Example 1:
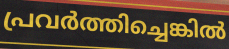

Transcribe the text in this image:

പ്രവർത്തിച്ചെങ്കിൽ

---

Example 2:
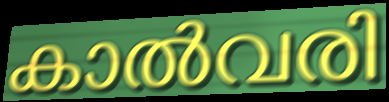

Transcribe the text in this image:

കാൽവരി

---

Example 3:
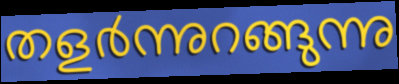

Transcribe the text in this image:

തളർന്നുറങ്ങുന്നു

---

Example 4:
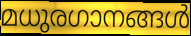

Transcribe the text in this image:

മധുരഗാനങ്ങൾ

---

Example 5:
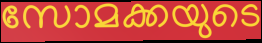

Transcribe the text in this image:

സോമക്കയുടെ